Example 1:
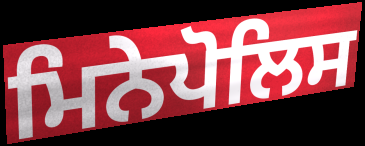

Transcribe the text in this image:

ਮਿਨੇਪੋਲਿਸ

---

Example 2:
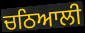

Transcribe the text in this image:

ਚਠਿਆਲੀ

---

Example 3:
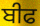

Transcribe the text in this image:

ਬੀਫ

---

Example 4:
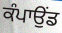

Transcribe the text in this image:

ਕੰਪਾਉਂਡ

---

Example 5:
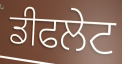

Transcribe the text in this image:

ਡੀਫਲੇਟ